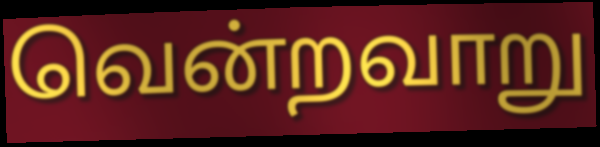
வென்றவாறு